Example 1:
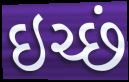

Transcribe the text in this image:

ઇચ્છં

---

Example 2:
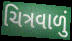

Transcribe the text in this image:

ચિત્રવાળું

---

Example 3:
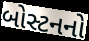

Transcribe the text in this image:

બોસ્ટનનો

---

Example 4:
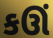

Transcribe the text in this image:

કઊં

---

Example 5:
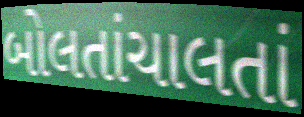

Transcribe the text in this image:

બોલતાંચાલતાં